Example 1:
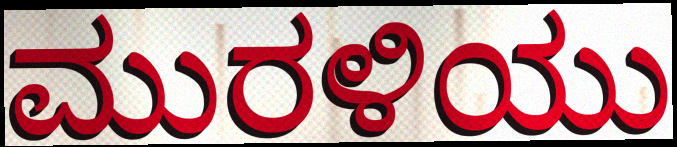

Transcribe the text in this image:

ಮುರಳಿಯು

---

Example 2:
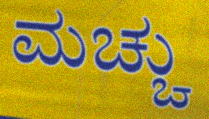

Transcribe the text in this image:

ಮಚ್ಚು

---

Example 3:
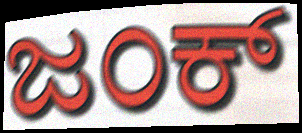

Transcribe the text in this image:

ಜಂಕ್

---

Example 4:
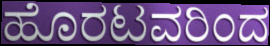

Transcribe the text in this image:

ಹೊರಟವರಿಂದ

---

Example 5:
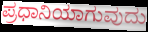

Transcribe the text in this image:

ಪ್ರಧಾನಿಯಾಗುವುದು